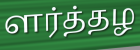
ளர்த்தழ